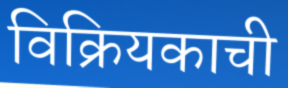
विक्रियकाची